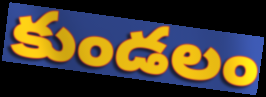
కుండలం